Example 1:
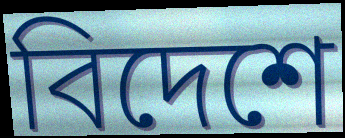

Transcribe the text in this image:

বিদেশে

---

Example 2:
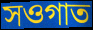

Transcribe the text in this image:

সওগাত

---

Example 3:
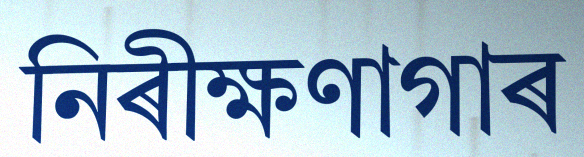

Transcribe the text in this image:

নিৰীক্ষণাগাৰ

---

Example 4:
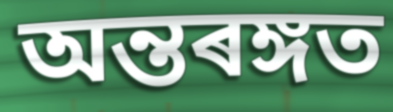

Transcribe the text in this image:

অন্তৰঙ্গত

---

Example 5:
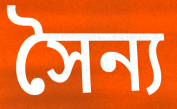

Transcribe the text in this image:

সৈন্য